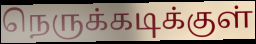
நெருக்கடிக்குள்